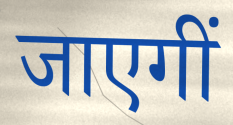
जाएगीं